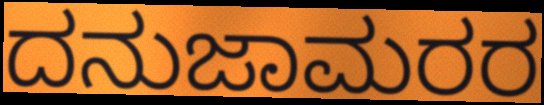
ದನುಜಾಮರರ